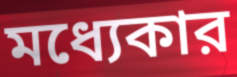
মধ্যেকার